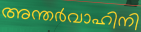
അന്തർവാഹിനി